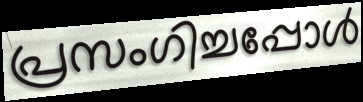
പ്രസംഗിച്ചപ്പോൾ